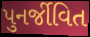
પુનર્જીવિત